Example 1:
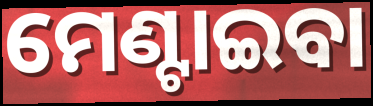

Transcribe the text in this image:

ମେଣ୍ଟାଇବା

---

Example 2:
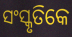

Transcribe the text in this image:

ସଂସ୍କୃତିକେ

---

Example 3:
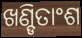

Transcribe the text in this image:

ଖଣ୍ଡିତାଂଶ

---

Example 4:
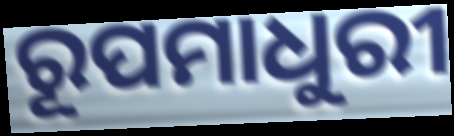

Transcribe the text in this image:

ରୂପମାଧୁରୀ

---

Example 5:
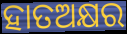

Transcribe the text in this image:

ହାତଅକ୍ଷର